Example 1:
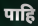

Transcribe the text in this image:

पाहि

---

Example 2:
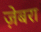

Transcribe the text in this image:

ज़ेबरा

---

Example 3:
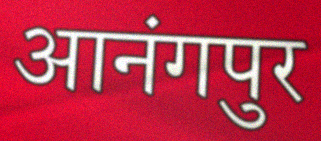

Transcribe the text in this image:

आनंगपुर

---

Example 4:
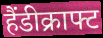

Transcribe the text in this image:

हैंडीक्राफ्ट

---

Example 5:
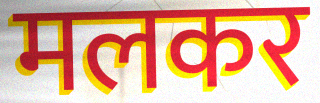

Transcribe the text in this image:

मलकर